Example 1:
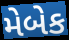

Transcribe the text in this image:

મેબેક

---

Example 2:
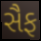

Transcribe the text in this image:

સૈફ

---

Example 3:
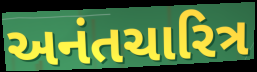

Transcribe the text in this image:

અનંતચારિત્ર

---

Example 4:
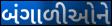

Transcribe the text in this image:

બંગાળીઓને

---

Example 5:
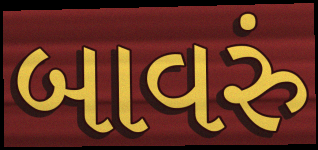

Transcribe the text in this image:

બાવરું